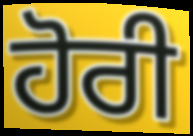
ਹੋਰੀ